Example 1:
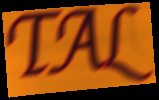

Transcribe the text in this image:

TAL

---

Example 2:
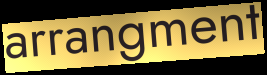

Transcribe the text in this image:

arrangment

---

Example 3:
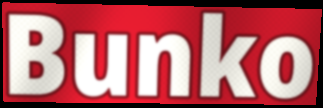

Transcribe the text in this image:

Bunko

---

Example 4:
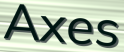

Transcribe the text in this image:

Axes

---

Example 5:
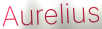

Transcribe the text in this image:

Aurelius